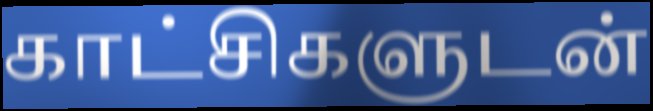
காட்சிகளுடன்